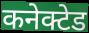
कनेक्टेड